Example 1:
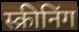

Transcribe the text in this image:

स्क्रीनिंग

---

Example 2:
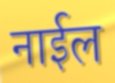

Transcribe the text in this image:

नाईल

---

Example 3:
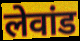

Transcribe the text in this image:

लेवांड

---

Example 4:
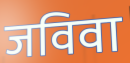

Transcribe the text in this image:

जविवा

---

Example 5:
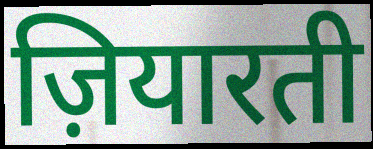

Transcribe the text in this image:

ज़ियारती